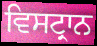
ਵਿਸਟ੍ਰਾਨ